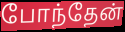
போந்தேன்